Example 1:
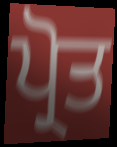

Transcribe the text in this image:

ਪ੍ਰੋਤ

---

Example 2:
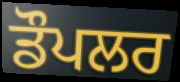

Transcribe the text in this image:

ਡੌਪਲਰ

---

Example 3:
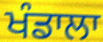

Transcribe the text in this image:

ਖੰਡਾਲਾ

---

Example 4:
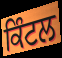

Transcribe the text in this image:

ਕਿੰਟਲ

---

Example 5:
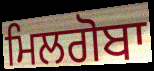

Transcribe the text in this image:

ਮਿਲਗੋਬਾ